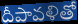
దీపావళితో